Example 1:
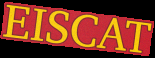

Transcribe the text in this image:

EISCAT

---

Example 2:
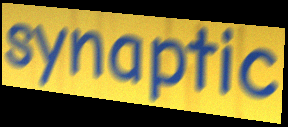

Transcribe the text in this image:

synaptic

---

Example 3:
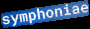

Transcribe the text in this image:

symphoniae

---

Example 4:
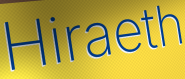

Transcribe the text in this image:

Hiraeth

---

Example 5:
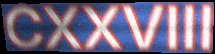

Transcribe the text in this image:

CXXVIII